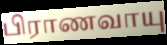
பிராணவாயு